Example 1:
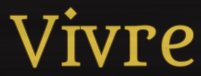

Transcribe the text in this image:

Vivre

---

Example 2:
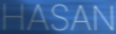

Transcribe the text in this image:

HASAN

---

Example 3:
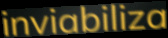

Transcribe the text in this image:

inviabiliza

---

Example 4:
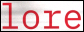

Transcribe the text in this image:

lore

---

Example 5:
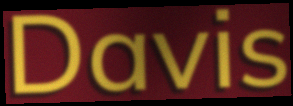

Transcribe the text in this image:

Davis